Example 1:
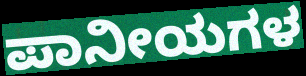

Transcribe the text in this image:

ಪಾನೀಯಗಳ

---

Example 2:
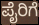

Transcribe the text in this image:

ಪೈರಿಗೆ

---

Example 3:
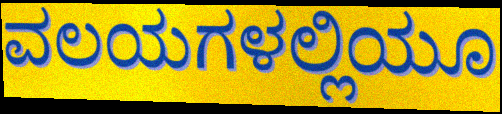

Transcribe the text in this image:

ವಲಯಗಳಲ್ಲಿಯೂ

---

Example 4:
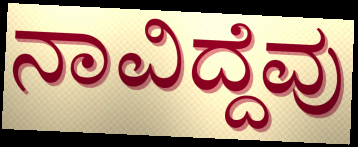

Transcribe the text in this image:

ನಾವಿದ್ದೆವು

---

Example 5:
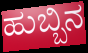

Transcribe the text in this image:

ಹುಬ್ಬಿನ